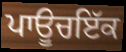
ਪਾਊਚਇੱਕ